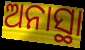
ଅନାସ୍ଥା